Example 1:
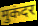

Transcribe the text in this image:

मुकंदर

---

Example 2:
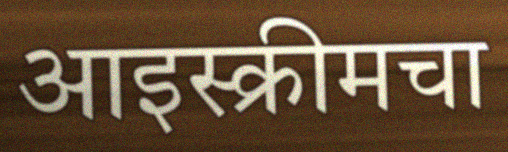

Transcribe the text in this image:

आइस्क्रीमचा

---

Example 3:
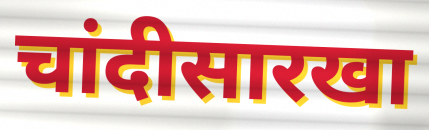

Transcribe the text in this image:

चांदीसारखा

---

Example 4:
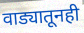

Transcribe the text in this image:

वाड्यातूनही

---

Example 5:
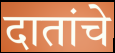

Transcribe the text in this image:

दातांचे